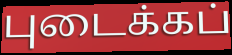
புடைக்கப்